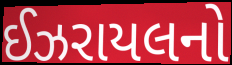
ઈઝરાયલનો